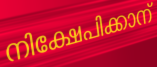
നിക്ഷേപിക്കാന്